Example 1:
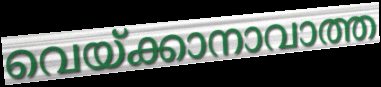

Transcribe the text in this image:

വെയ്ക്കാനാവാത്ത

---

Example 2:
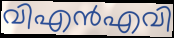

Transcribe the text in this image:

വിഎൻഎവി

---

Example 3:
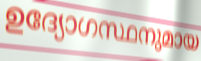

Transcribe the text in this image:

ഉദ്യോഗസ്ഥനുമായ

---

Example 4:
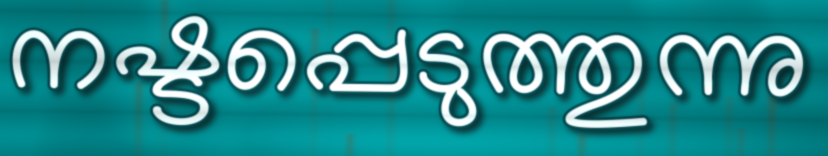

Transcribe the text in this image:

നഷ്ടപ്പെടുത്തുന്നു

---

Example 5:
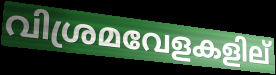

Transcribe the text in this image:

വിശ്രമവേളകളില്